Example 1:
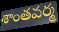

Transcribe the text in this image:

శాంతవర్మ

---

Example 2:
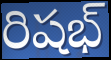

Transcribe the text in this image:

రిషభ్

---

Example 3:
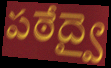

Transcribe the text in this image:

పఠేద్వై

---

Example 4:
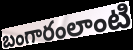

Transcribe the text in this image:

బంగారంలాంటి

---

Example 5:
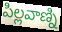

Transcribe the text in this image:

పిల్లవాణ్ని